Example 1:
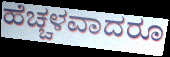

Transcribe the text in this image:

ಹೆಚ್ಚಳವಾದರೂ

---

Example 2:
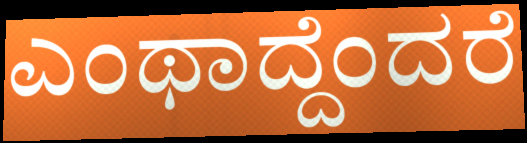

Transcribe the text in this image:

ಎಂಥಾದ್ದೆಂದರೆ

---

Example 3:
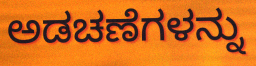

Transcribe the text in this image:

ಅಡಚಣೆಗಳನ್ನು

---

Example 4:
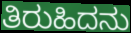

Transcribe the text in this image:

ತಿರುಹಿದನು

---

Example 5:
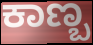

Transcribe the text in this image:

ಕಾಣ್ಬ